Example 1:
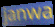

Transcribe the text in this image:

janwa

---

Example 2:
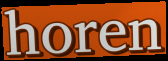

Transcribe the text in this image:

horen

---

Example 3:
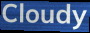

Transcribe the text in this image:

Cloudy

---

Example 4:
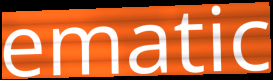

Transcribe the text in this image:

ematic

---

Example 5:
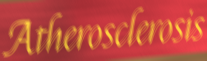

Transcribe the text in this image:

Atherosclerosis